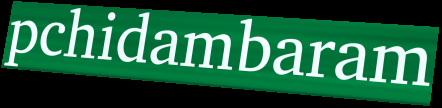
pchidambaram